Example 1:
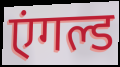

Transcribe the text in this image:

एंगल्ड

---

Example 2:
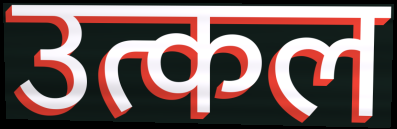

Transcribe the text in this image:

उत्कल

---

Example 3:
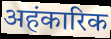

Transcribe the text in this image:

अहंकारिक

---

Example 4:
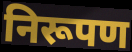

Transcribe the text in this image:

निरूपण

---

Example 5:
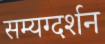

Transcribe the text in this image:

सम्यग्दर्शन